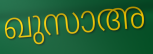
ഖുസാഅ